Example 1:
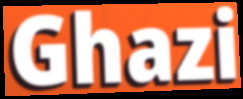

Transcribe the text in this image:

Ghazi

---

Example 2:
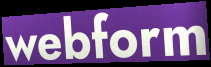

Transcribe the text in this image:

webform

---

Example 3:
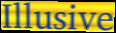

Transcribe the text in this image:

Illusive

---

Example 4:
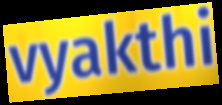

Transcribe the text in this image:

vyakthi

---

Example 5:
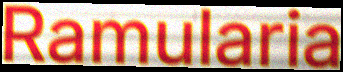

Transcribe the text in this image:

Ramularia